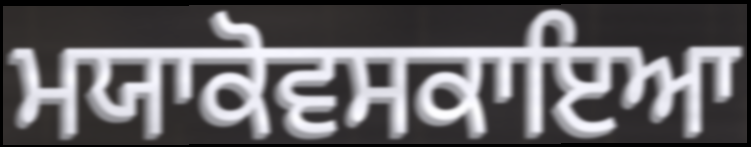
ਮਯਾਕੋਵਸਕਾਇਆ